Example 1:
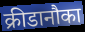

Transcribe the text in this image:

क्रीडानौका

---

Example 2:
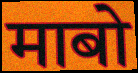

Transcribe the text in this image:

माबो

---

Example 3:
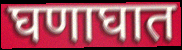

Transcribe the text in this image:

घणाघात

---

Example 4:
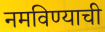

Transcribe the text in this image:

नमविण्याची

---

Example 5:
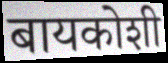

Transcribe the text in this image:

बायकोशी